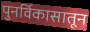
पुनर्विकासातून